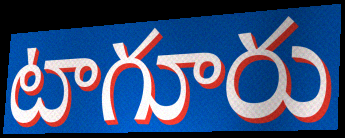
టాగూరు